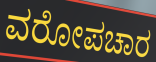
ವರೋಪಚಾರ